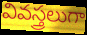
వివస్త్రలుగా